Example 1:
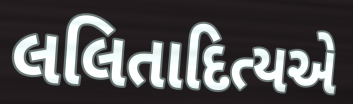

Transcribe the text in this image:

લલિતાદિત્યએ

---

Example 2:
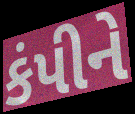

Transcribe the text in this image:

કંપીને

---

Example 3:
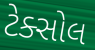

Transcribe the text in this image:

ટેક્સોલ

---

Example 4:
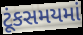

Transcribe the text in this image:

ટૂંકસમયમાં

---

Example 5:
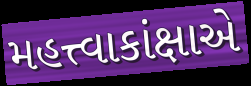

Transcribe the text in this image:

મહત્ત્વાકાંક્ષાએ